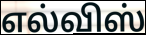
எல்விஸ்